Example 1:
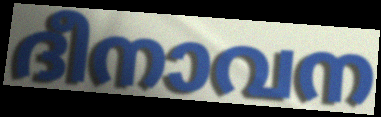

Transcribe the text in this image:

ദീനാവന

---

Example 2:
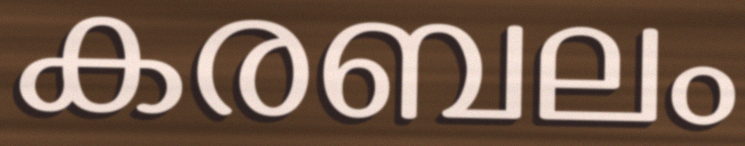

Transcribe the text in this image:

കരബലം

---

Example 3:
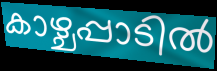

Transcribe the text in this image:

കാഴ്ചപ്പാടിൽ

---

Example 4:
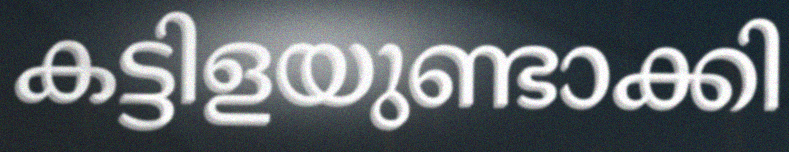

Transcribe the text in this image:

കട്ടിളയുണ്ടാക്കി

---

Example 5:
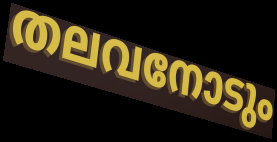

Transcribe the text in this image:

തലവനോടും